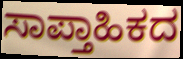
ಸಾಪ್ತಾಹಿಕದ